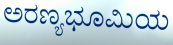
ಅರಣ್ಯಭೂಮಿಯ